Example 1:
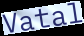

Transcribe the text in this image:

Vatal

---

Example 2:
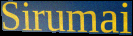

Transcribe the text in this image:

Sirumai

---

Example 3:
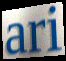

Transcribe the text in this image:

ari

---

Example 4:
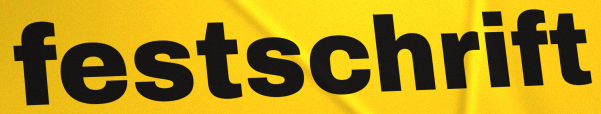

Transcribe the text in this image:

festschrift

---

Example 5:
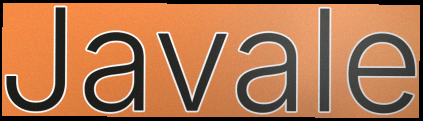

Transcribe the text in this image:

Javale